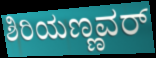
ಶಿರಿಯಣ್ಣವರ್